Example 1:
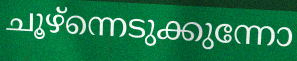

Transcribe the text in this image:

ചൂഴ്ന്നെടുക്കുന്നോ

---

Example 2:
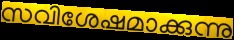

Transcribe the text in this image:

സവിശേഷമാക്കുന്നു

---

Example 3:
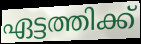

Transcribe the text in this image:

ഏട്ടത്തിക്ക്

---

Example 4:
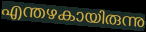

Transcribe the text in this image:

എന്തഴകായിരുന്നു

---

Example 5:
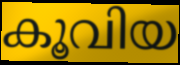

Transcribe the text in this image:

കൂവിയ